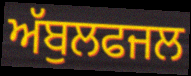
ਅੱਬੁਲਫਜਲ